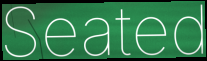
Seated